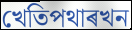
খেতিপথাৰখন